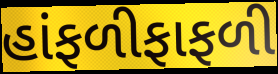
હાંફળીફાફળી